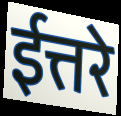
ईत्तरे